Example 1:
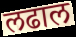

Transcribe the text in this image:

लढाल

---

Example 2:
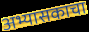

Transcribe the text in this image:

अभ्यासकाचा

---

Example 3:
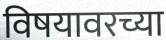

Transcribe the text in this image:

विषयावरच्या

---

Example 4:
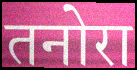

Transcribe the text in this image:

तनोरा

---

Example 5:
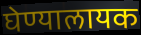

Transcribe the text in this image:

घेण्यालायक